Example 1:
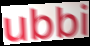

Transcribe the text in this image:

ubbi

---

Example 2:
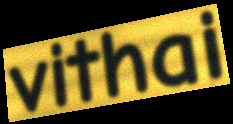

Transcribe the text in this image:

vithai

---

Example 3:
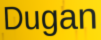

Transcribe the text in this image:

Dugan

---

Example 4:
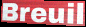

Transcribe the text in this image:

Breuil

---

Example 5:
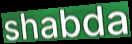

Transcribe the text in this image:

shabda